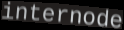
internode